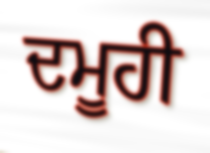
ਦਮੂਹੀ